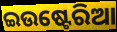
ଇଉଷ୍ଟେରିଆ